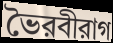
ভৈরবীরাগ